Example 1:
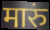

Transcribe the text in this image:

मारुं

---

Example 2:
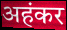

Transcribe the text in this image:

अहंकर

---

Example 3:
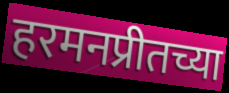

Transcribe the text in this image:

हरमनप्रीतच्या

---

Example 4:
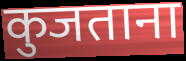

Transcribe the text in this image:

कुजताना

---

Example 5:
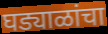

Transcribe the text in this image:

घड्याळांचा